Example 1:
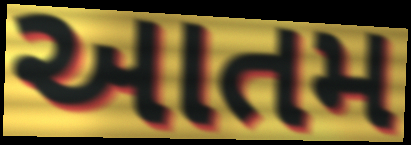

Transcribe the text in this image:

આતમ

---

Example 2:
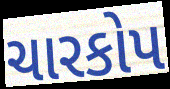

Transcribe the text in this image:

ચારકોપ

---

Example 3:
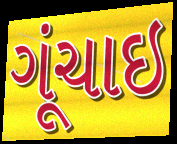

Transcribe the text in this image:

ગૂંચાઇ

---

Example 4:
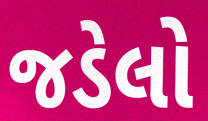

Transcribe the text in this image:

જડેલો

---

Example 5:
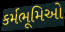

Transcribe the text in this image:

કર્મભૂમિઓ